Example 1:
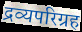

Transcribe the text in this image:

द्रव्यपरिग्रह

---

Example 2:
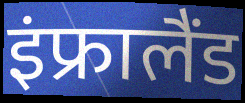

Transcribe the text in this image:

इंफ्रालैंड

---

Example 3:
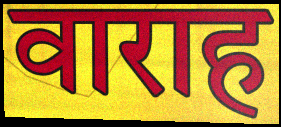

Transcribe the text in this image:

वाराह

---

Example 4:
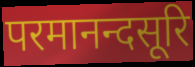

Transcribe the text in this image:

परमानन्दसूरि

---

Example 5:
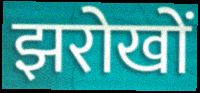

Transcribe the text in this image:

झरोखों